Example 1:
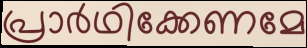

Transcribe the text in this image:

പ്രാർഥിക്കേണമേ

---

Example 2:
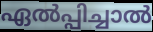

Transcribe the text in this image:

ഏൽപ്പിച്ചാൽ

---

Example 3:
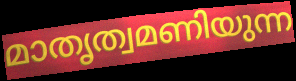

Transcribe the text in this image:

മാതൃത്വമണിയുന്ന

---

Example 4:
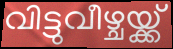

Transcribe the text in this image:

വിട്ടുവീഴ്ചയ്ക്ക്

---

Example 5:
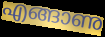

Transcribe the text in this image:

എങ്ങാണു